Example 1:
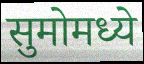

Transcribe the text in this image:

सुमोमध्ये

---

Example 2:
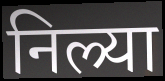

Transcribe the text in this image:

निल्या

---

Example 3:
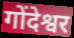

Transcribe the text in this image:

गोंदेश्वर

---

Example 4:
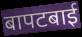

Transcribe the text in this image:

बापटबाई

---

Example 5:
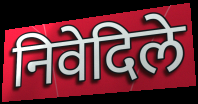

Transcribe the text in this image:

निवेदिले